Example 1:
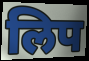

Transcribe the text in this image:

लिप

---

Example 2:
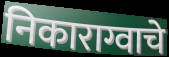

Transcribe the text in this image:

निकाराग्वाचे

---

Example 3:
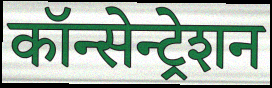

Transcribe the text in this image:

कॉन्सेन्ट्रेशन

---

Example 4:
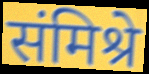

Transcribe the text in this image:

संमिश्रे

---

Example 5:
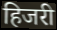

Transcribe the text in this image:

हिजरी